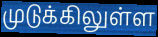
முடுக்கிலுள்ள